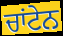
ਚਾਂਟੇਨ